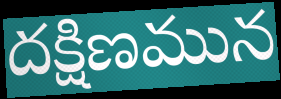
దక్షిణమున